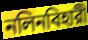
নলিনবিহারী